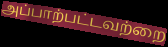
அப்பாற்பட்டவற்றை